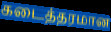
கடைத்தரமான